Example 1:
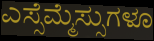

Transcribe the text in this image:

ಎಸ್ಸೆಮ್ಮೆಸ್ಸುಗಳೂ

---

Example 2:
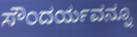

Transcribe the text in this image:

ಸೌಂದರ್ಯವನ್ನೂ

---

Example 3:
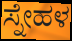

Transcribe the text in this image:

ಸ್ನೇಹಳ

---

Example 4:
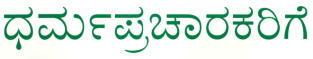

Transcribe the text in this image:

ಧರ್ಮಪ್ರಚಾರಕರಿಗೆ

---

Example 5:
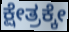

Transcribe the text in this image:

ಕ್ಷೇತ್ರಕ್ಕೇ